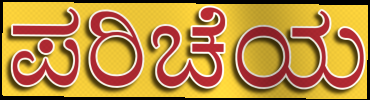
ಪರಿಚೆಯ